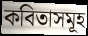
কবিতাসমূহ